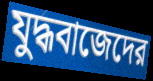
যুদ্ধবাজেদের